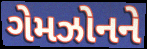
ગેમઝોનને